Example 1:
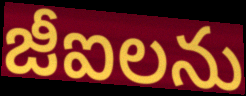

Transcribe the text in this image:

జీఐలను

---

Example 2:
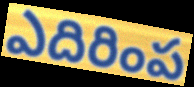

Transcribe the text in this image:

ఎదిరింప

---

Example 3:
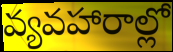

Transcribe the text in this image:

వ్యవహారాల్లో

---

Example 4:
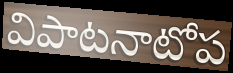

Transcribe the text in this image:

విపాటనాటోప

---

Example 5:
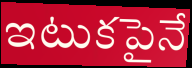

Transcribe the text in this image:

ఇటుకపైనే